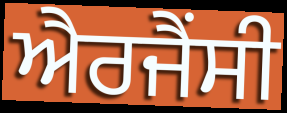
ਐਰਜੈਂਸੀ